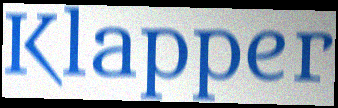
Klapper